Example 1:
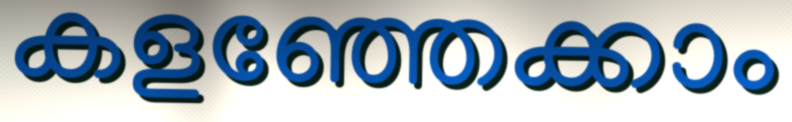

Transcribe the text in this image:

കളഞ്ഞേക്കാം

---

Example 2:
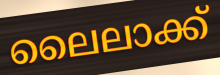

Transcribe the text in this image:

ലൈലാക്ക്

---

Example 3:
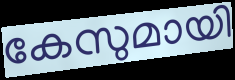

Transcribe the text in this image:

കേസുമായി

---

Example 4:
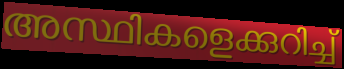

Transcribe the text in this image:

അസ്ഥികളെക്കുറിച്ച്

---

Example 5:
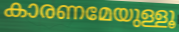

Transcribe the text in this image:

കാരണമേയുള്ളൂ